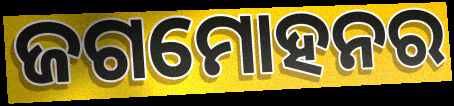
ଜଗମୋହନର